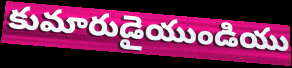
కుమారుడైయుండియు